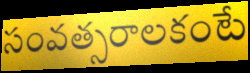
సంవత్సరాలకంటే